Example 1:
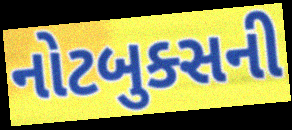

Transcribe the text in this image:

નોટબુક્સની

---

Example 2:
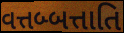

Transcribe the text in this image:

વત્તબ્બત્તાતિ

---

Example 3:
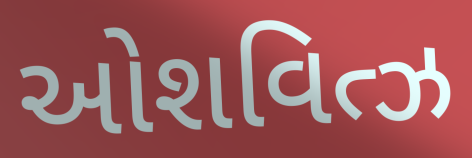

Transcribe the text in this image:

ઓશવિત્ઝ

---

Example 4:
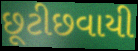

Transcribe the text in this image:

છૂટીછવાયી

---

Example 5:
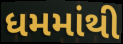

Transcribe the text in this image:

ધમમાંથી